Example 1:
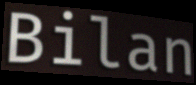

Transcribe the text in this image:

Bilan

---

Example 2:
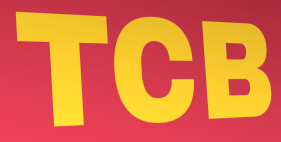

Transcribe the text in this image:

TCB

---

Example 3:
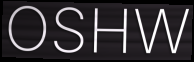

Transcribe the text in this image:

OSHW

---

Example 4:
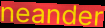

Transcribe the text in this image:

neander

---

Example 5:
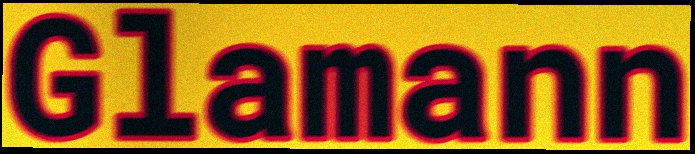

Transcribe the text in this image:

Glamann